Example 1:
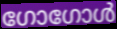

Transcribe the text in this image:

ഗോഗോൾ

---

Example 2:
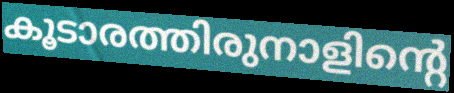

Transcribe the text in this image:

കൂടാരത്തിരുനാളിന്റെ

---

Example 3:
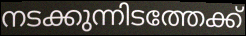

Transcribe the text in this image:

നടക്കുന്നിടത്തേക്ക്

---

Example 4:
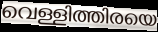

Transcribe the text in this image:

വെള്ളിത്തിരയെ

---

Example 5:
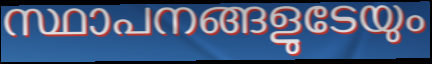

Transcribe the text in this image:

സ്ഥാപനങ്ങളുടേയും